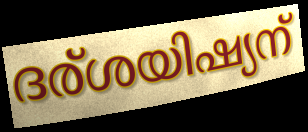
ദര്ശയിഷ്യന്